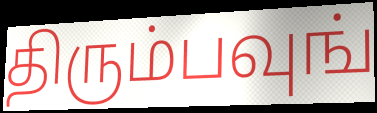
திரும்பவுங்